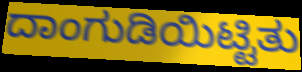
ದಾಂಗುಡಿಯಿಟ್ಟಿತು